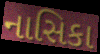
નાસિકા